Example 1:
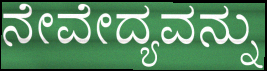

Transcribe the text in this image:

ನೇವೇದ್ಯವನ್ನು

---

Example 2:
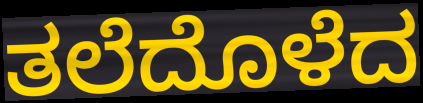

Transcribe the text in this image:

ತಲೆದೊಳೆದ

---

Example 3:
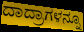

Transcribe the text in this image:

ದಾದ್ರಾಗಳನ್ನೂ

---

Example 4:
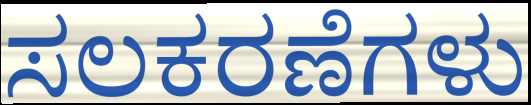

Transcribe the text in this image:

ಸಲಕರಣೆಗಳು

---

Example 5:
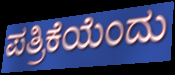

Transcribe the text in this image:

ಪತ್ರಿಕೆಯೆಂದು